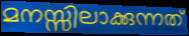
മനസ്സിലാക്കുന്നത്